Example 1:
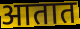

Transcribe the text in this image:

आतात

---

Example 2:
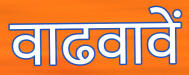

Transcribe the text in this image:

वाढवावें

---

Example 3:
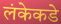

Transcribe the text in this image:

लंकेकडे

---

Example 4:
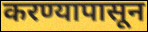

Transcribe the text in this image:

करण्यापासून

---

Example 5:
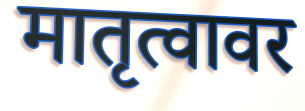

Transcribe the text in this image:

मातृत्वावर